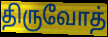
திருவோத்